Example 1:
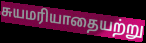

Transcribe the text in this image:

சுயமரியாதையற்று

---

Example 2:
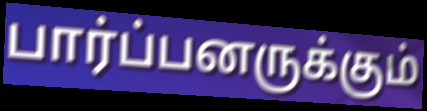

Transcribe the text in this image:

பார்ப்பனருக்கும்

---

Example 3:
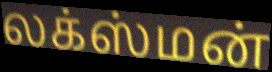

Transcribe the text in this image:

லக்ஸ்மன்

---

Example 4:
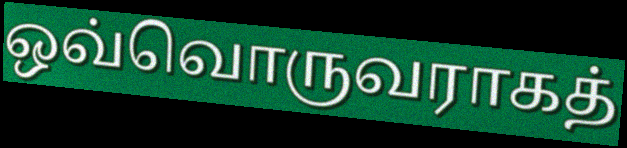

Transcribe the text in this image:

ஒவ்வொருவராகத்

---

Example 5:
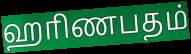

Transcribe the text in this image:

ஹரிணபதம்